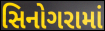
સિનોગરામાં